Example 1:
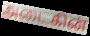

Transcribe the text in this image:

அடைகின்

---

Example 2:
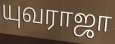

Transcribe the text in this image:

யுவராஜா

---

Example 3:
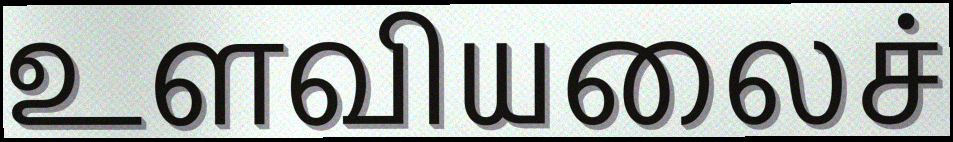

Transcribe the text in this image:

உளவியலைச்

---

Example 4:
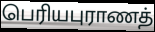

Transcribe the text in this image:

பெரியபுராணத்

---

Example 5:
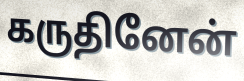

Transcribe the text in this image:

கருதினேன்